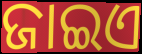
ଜାଇଏ